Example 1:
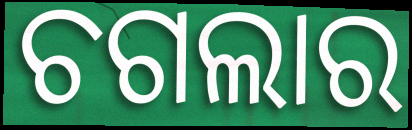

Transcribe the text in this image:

ଚଗଲାର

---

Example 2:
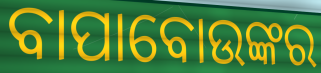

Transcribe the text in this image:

ବାପାବୋଉଙ୍କର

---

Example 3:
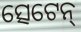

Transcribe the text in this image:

ତ୍ସେଟେନ୍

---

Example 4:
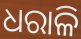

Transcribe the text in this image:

ଧରାଳି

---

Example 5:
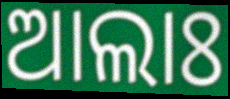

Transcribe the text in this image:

ଆଲାଃ